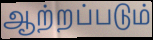
ஆற்றப்படும்